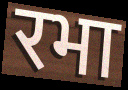
रभा